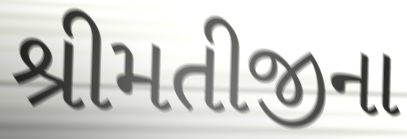
શ્રીમતીજીના